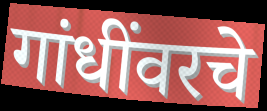
गांधींवरचे